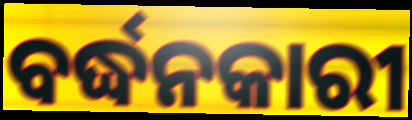
ବର୍ଦ୍ଧନକାରୀ